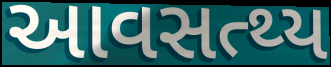
આવસત્થ્ય